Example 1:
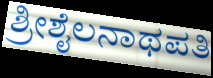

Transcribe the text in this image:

ಶ್ರೀಶೈಲನಾಥಪತಿ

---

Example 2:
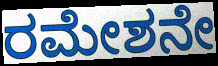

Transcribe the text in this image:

ರಮೇಶನೇ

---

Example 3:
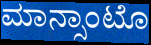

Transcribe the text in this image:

ಮಾನ್ಸಾಂಟೊ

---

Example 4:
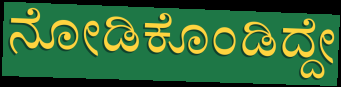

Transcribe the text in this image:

ನೋಡಿಕೊಂಡಿದ್ದೇ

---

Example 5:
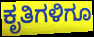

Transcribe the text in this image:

ಕೃತಿಗಳಿಗೂ